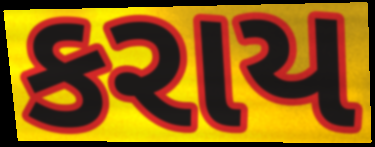
કરાય